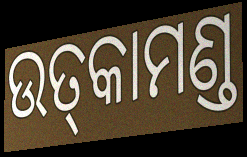
ଉତ୍‌କାମଣ୍ଡ